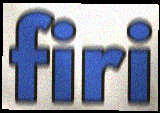
firi